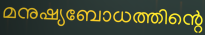
മനുഷ്യബോധത്തിന്റെ